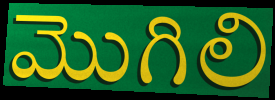
మొగిలి